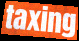
taxing